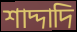
শাদ্দাদি